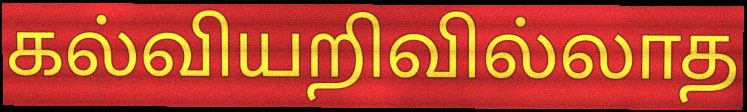
கல்வியறிவில்லாத